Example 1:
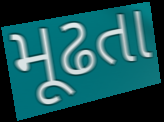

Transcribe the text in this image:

મૂઢતા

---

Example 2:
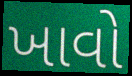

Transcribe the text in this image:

ખાવો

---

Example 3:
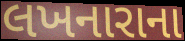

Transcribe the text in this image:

લખનારાના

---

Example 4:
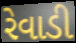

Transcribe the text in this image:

રેવાડી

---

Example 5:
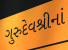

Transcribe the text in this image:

ગુરુદેવશ્રીનાં